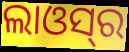
ଲାଓସ୍‌ର